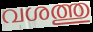
വശത്തു